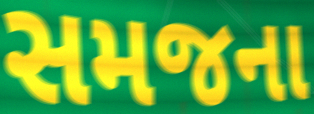
સમજના